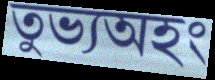
তুভ্যঅহং